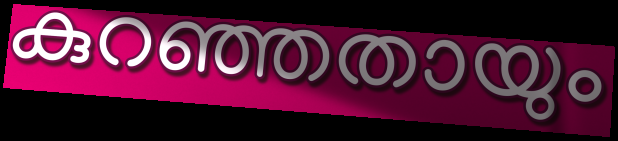
കുറഞ്ഞതായും